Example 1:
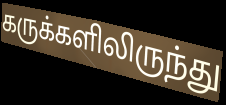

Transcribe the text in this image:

கருக்களிலிருந்து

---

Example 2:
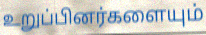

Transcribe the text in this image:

உறுப்பினர்களையும்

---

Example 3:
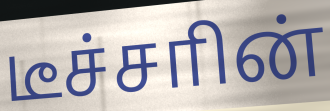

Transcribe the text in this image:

டீச்சரின்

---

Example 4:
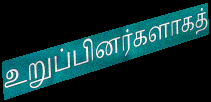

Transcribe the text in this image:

உறுப்பினர்களாகத்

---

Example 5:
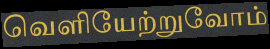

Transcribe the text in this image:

வெளியேற்றுவோம்